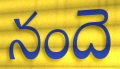
నందె